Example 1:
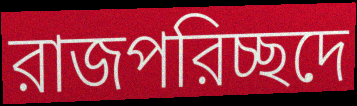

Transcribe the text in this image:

রাজপরিচ্ছদে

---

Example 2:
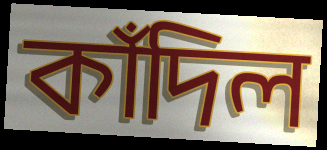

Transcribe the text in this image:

কাঁদিল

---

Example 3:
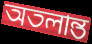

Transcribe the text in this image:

অতলান্ত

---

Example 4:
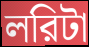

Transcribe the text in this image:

লরিটা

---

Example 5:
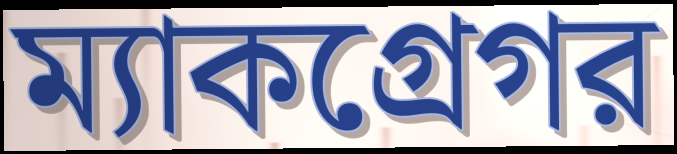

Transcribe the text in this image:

ম্যাকগ্রেগর